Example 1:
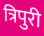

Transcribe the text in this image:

त्रिपुरी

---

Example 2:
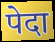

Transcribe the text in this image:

पेदा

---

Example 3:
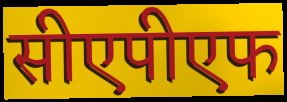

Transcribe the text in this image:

सीएपीएफ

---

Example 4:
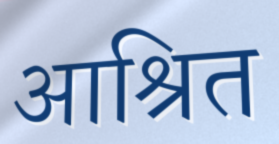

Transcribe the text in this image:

आश्रित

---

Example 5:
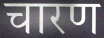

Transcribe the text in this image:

चारण